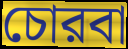
চোরবা